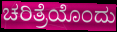
ಚರಿತ್ರೆಯೊಂದು